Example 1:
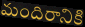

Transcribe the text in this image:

మందిరానికి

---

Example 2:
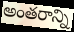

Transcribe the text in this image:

అంతరాన్ని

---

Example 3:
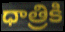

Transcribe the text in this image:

ధాత్రికి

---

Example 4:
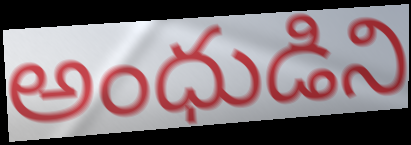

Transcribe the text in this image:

అంధుడిని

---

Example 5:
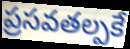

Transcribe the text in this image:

ప్రసవతల్పకే